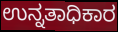
ಉನ್ನತಾಧಿಕಾರ